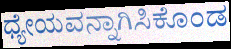
ಧ್ಯೇಯವನ್ನಾಗಿಸಿಕೊಂಡ